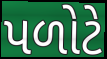
પળોટે